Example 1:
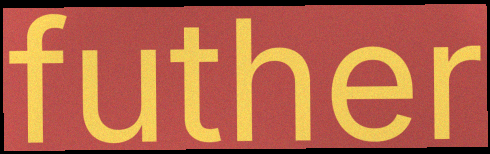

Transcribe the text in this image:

futher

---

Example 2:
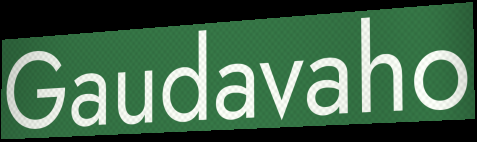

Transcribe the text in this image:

Gaudavaho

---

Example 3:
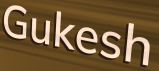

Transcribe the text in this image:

Gukesh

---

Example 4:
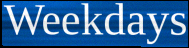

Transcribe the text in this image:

Weekdays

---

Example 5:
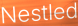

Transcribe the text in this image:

Nestled